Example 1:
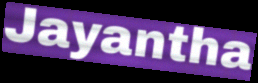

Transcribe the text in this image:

Jayantha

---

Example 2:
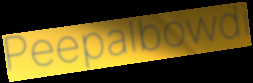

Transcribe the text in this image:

Peepalbowdi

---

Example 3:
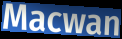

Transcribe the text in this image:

Macwan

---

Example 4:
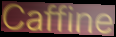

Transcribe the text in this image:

Caffine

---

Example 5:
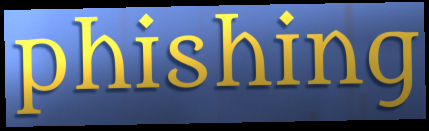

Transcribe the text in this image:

phishing